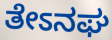
ತೇಽನಘ